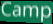
Camp